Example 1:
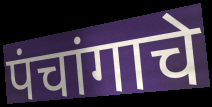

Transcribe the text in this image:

पंचांगाचे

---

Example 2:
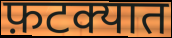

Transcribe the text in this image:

फ़टक्यात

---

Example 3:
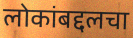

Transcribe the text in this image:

लोकांबद्दलचा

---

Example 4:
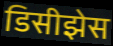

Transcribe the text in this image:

डिसीझेस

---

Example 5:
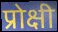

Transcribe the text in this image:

प्रोक्षी